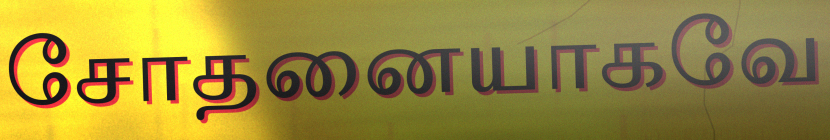
சோதனையாகவே